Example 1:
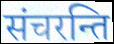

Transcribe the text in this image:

संचरन्ति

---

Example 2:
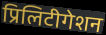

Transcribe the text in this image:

प्रिलिटीगेशन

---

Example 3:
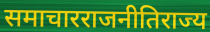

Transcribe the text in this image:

समाचारराजनीतिराज्य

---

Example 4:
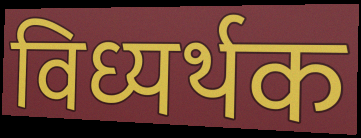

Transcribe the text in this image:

विध्यर्थक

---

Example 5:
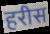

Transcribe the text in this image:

हरीस